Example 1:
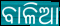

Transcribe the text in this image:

ବାଳିଆ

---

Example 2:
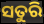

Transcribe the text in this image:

ସତୁରି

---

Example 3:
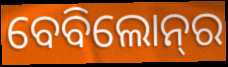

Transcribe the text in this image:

ବେବିଲୋନ୍‌ର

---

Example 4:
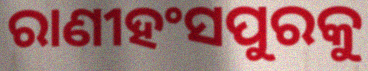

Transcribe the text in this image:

ରାଣୀହଂସପୁରକୁ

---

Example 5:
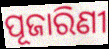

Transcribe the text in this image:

ପୂଜାରିଣୀ